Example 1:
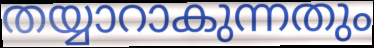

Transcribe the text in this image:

തയ്യാറാകുന്നതും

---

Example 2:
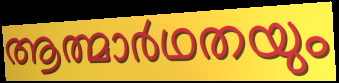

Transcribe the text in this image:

ആത്മാർഥതയും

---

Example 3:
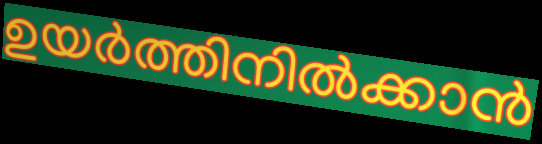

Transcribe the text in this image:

ഉയർത്തിനിൽക്കാൻ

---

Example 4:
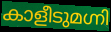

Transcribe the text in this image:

കാളീടുമഗ്നി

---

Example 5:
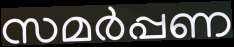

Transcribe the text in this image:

സമർപ്പണ